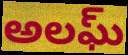
అలఘ్